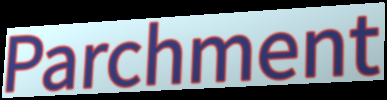
Parchment